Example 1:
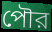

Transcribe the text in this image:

পৌর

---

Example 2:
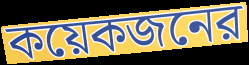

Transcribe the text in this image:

কয়েকজনের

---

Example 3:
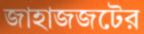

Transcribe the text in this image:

জাহাজজটের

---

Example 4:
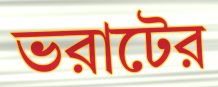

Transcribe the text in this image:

ভরাটের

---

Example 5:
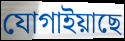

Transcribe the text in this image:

যোগাইয়াছে